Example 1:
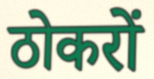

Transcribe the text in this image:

ठोकरों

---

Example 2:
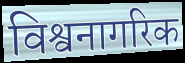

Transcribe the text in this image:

विश्वनागरिक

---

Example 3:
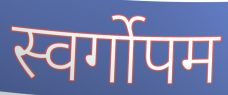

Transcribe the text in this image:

स्वर्गोपम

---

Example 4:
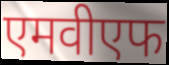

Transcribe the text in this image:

एमवीएफ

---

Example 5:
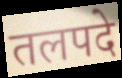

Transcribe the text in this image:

तलपदे